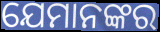
ଯେମାନଙ୍କର